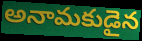
అనామకుడైన